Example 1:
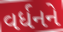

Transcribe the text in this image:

વર્ધનને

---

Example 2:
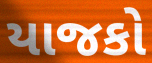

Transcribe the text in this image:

યાજકો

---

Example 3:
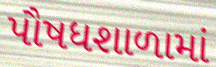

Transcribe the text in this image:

પૌષધશાળામાં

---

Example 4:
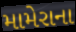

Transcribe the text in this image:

મામેરાના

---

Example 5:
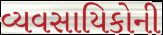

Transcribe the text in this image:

વ્યવસાયિકોની